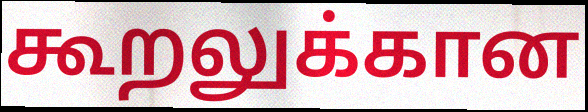
கூறலுக்கான